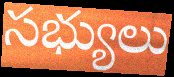
సభ్యులు